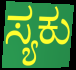
ಸ್ಯಕು